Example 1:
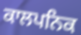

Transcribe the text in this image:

ਕਾਲਪਨਿਕ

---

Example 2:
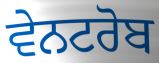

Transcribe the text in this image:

ਵੇਨਟਰੋਬ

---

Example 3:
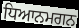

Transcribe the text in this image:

ਧਿਆਨਮਗਨ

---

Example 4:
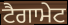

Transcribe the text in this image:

ਟੈਗਾਮੇਟ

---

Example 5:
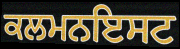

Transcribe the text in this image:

ਕਲਮਨਇਸਟ